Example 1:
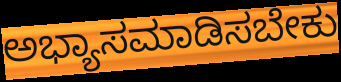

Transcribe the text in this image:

ಅಭ್ಯಾಸಮಾಡಿಸಬೇಕು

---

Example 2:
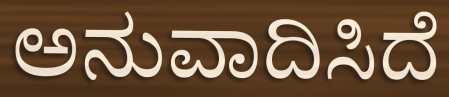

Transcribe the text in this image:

ಅನುವಾದಿಸಿದೆ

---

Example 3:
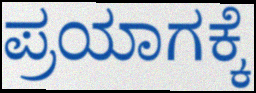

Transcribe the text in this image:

ಪ್ರಯಾಗಕ್ಕೆ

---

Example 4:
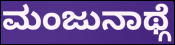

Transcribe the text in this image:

ಮಂಜುನಾಥ್ಗೆ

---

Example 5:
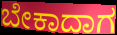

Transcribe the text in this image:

ಬೇಕಾದಾಗ